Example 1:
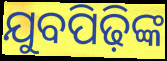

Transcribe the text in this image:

ଯୁବପିଢ଼ିଙ୍କ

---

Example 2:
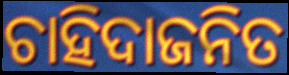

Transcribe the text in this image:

ଚାହିଦାଜନିତ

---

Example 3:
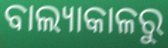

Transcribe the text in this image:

ବାଲ୍ୟାକାଳରୁ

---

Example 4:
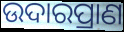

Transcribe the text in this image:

ଉଦାରପ୍ରାଣ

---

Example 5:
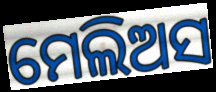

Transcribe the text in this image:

ମେଲିଅସ